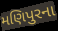
મણિપુરના